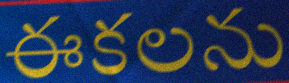
ఈకలను